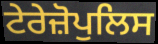
ਟੇਰੇਜ਼ੋਪੁਲਿਸ